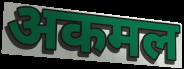
अकमल